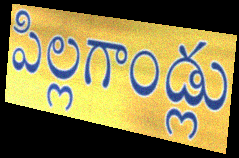
పిల్లగాండ్లు